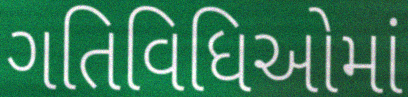
ગતિવિધિઓમાં